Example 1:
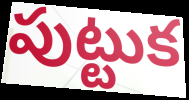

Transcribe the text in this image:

పుట్టుక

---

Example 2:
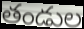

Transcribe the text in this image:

తండుల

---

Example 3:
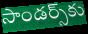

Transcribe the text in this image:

సాండర్స్‌కు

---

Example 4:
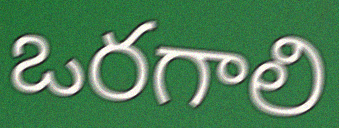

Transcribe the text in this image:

ఒరగాలి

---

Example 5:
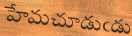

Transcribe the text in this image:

హేమచూడుఁడు